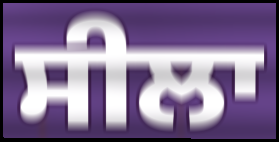
ਸੀਲਾ